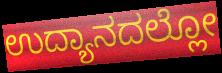
ಉದ್ಯಾನದಲ್ಲೋ